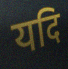
यदि